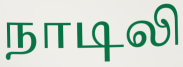
நாடிலி